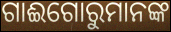
ଗାଈଗୋରୁମାନଙ୍କ